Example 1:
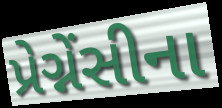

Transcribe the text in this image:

પ્રેગ્નેંસીના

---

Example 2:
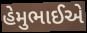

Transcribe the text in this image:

હેમુભાઈએ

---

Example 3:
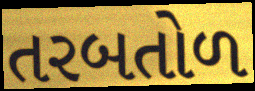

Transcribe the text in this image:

તરબતોળ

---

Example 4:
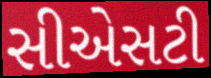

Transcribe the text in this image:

સીએસટી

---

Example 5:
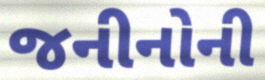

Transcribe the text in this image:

જનીનોની